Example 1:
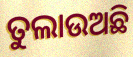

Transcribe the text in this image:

ତୁଲାଉଅଛି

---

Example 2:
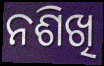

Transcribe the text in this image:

ନଶିଖି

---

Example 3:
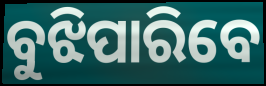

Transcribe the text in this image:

ବୁଝିପାରିବେ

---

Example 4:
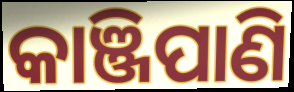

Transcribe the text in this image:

କାଞ୍ଜିପାଣି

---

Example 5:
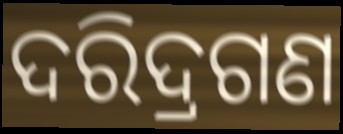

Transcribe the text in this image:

ଦରିଦ୍ରଗଣ